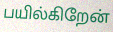
பயில்கிறேன்